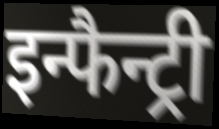
इन्फैन्ट्री